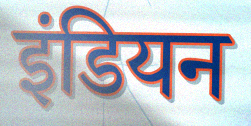
इंडियन